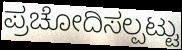
ಪ್ರಚೋದಿಸಲ್ಪಟ್ಟು